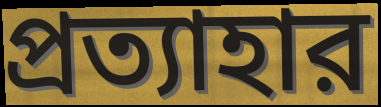
প্রত্যাহার